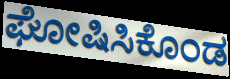
ಘೋಷಿಸಿಕೊಂಡ